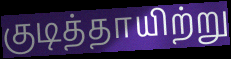
குடித்தாயிற்று